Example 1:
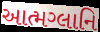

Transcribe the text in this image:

આત્મગ્લાનિ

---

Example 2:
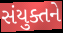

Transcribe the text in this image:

સંયુક્તને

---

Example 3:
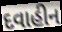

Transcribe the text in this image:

દવાહીન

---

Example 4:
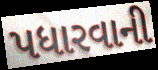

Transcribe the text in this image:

પધારવાની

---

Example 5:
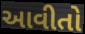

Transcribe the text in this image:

આવીતો